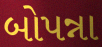
બોપન્ના